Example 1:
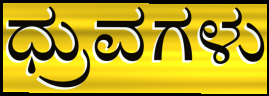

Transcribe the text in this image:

ಧ್ರುವಗಳು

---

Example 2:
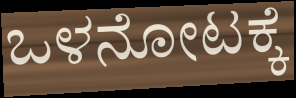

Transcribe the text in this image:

ಒಳನೋಟಕ್ಕೆ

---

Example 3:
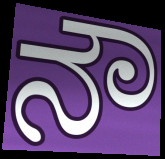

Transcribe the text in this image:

ನೌ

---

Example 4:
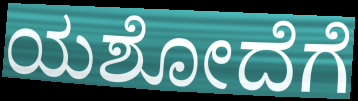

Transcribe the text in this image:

ಯಶೋದೆಗೆ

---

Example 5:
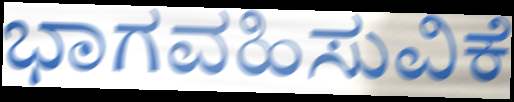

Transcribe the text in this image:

ಭಾಗವಹಿಸುವಿಕೆ